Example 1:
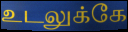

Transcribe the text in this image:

உடலுக்கே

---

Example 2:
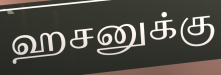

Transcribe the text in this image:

ஹசனுக்கு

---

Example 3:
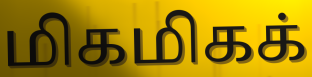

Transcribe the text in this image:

மிகமிகக்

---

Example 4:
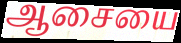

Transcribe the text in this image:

ஆசையை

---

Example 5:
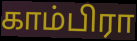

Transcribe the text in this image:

காம்பிரா